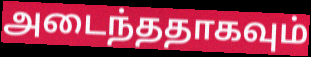
அடைந்ததாகவும்